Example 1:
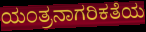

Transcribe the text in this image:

ಯಂತ್ರನಾಗರಿಕತೆಯ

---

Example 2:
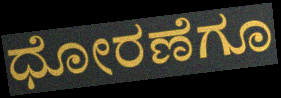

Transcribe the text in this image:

ಧೋರಣೆಗೂ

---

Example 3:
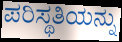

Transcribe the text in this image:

ಪರಿಸ್ಥತಿಯನ್ನು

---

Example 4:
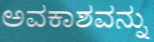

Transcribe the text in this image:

ಅವಕಾಶವನ್ನು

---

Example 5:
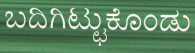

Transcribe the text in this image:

ಬದಿಗಿಟ್ಟುಕೊಂಡು